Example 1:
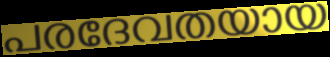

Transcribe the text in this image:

പരദേവതയായ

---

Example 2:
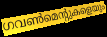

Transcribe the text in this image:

ഗവൺമെന്റുകളെയും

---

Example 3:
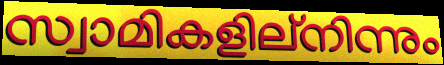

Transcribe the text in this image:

സ്വാമികളില്നിന്നും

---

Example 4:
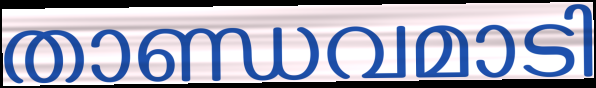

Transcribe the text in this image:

താണ്ഡവമാടി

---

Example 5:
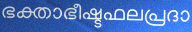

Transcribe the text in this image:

ഭക്താഭീഷ്ടഫലപ്രദാ